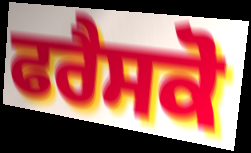
ਫਰੈਸਕੋ